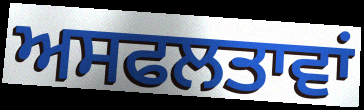
ਅਸਫਲਤਾਵਾਂ